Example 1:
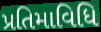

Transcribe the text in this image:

પ્રતિમાવિધિ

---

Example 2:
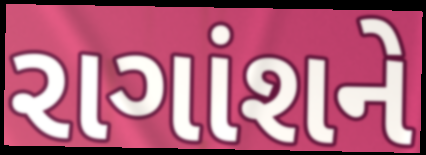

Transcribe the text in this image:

રાગાંશને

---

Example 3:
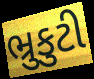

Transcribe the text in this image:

ભ્રુકુટી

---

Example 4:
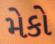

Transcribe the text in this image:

મેકો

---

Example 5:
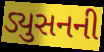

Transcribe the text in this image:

ડ્યુસનની